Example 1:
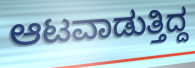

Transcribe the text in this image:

ಆಟವಾಡುತ್ತಿದ್ದ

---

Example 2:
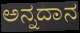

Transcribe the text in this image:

ಅನ್ನದಾನ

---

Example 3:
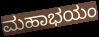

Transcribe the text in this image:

ಮಹಾಭಯಂ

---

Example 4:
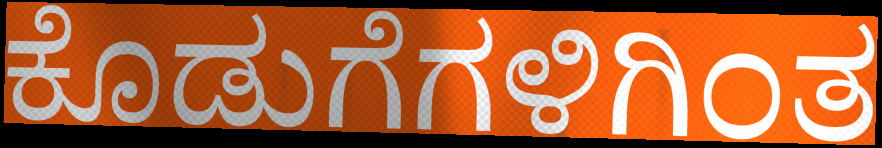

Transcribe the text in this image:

ಕೊಡುಗೆಗಳಿಗಿಂತ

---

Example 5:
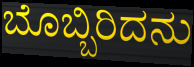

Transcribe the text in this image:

ಬೊಬ್ಬಿರಿದನು